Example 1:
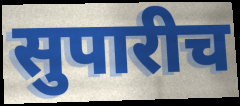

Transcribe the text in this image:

सुपारीच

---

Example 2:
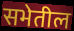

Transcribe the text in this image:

सभेतील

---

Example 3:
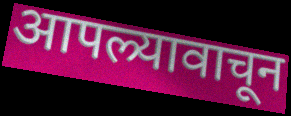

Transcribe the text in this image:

आपल्यावाचून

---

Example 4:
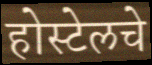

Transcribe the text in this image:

होस्टेलचे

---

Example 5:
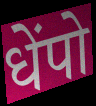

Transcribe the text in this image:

धेंपो